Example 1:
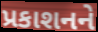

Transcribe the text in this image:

પ્રકાશનને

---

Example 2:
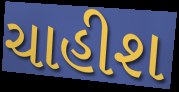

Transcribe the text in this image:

ચાહીશ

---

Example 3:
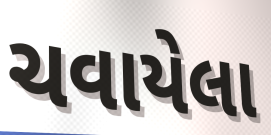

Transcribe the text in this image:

ચવાયેલા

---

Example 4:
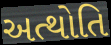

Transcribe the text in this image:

અત્થોતિ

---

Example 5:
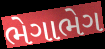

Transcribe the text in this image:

ભેગાભેગ